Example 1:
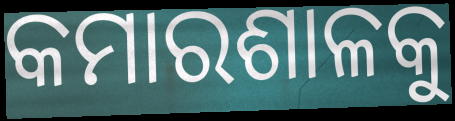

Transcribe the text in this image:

କମାରଶାଳକୁ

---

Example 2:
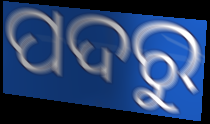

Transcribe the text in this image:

ପଦରୁ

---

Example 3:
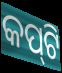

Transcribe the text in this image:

କପ୍‌ଟି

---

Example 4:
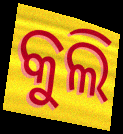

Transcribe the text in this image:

କୁଲି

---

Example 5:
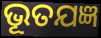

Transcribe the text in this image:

ଭୂତଯଜ୍ଞ